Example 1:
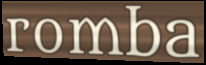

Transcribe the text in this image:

romba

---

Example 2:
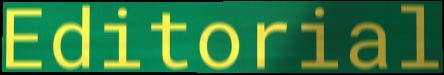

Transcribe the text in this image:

Editorial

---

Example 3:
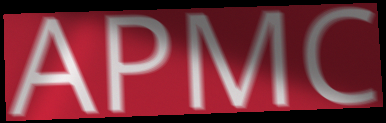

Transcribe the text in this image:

APMC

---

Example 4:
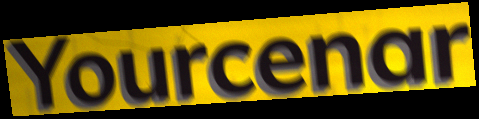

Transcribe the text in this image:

Yourcenar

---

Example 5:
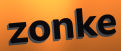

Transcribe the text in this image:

zonke